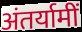
अंतर्यामीं